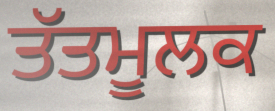
ਤੱਤਮੂਲਕ